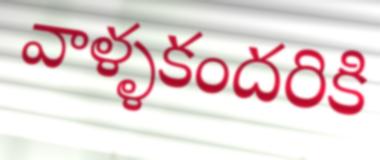
వాళ్ళకందరికి